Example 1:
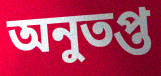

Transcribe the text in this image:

অনুতপ্ত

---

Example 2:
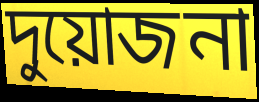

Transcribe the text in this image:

দুয়োজনা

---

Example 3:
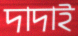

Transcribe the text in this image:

দাদাই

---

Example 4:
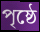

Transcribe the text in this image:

পৃষ্ঠে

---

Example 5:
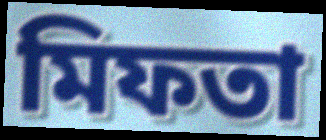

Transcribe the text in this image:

মিফতা